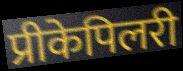
प्रीकेपिलरी